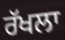
ਰੱਖਲਾ